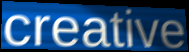
creative